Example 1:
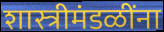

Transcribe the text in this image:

शास्त्रीमंडळींना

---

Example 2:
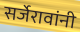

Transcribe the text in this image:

सर्जेरावांनी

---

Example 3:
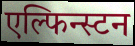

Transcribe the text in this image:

एल्फिन्स्टन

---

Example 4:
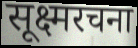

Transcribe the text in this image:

सूक्ष्मरचना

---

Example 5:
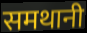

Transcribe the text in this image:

समथानी